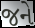
જને